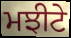
ਮਝੀਟੇ